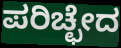
ಪರಿಚ್ಛೇದ